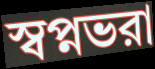
স্বপ্নভরা